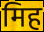
मिह